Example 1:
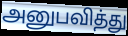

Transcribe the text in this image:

அனுபவித்து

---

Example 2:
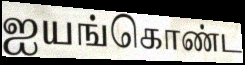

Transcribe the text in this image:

ஐயங்கொண்ட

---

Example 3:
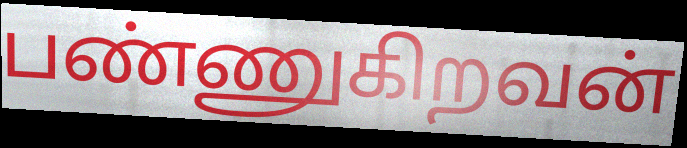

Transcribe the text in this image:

பண்ணுகிறவன்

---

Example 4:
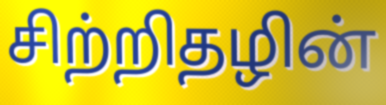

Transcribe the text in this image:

சிற்றிதழின்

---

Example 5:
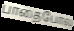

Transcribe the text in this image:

பாதைபோல